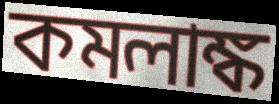
কমলাঙ্ক